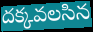
దక్కవలసిన